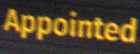
Appointed